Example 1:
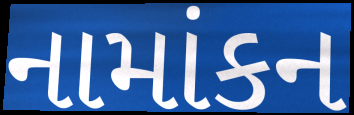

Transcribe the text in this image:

નામાંકન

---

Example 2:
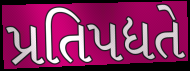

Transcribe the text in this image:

પ્રતિપદ્યતે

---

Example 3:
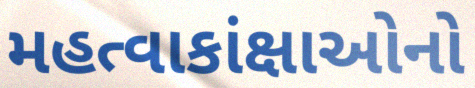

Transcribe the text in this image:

મહત્વાકાંક્ષાઓનો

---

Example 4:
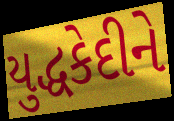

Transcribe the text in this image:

યુદ્ધકેદીને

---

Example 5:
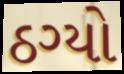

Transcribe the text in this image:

ઠગ્યો